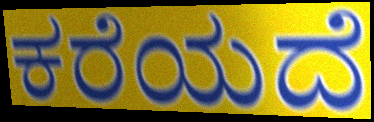
ಕರೆಯದೆ